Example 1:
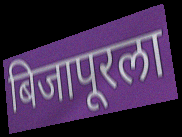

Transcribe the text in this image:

बिजापूरला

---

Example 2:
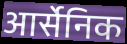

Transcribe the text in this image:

आर्सेनिक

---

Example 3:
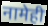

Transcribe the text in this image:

नामेही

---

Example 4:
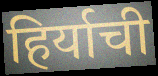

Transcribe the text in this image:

हिर्याची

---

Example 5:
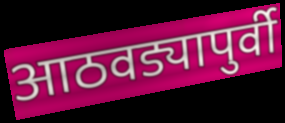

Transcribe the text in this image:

आठवड्यापुर्वी